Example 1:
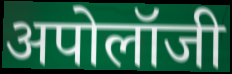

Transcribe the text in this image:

अपोलॉजी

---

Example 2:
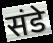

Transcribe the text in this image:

संडे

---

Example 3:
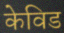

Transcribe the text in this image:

केविड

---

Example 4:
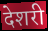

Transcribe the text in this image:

देशरी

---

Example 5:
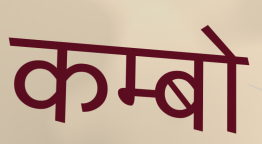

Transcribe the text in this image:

कम्बो